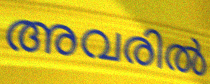
അവരിൽ